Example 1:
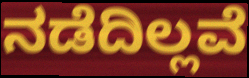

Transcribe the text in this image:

ನಡೆದಿಲ್ಲವೆ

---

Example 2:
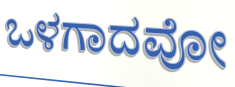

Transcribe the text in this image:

ಒಳಗಾದವೋ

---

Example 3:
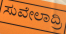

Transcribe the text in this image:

ಸುವೇಲಾದ್ರಿ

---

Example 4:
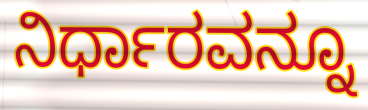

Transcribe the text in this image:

ನಿರ್ಧಾರವನ್ನೂ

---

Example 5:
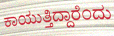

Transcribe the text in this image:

ಕಾಯುತ್ತಿದ್ದಾರೆಂದು